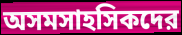
অসমসাহসিকদের